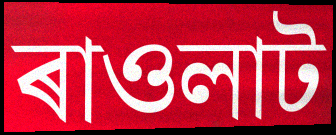
ৰাওলাট